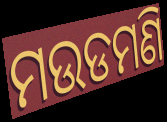
ମଉଡମଣି